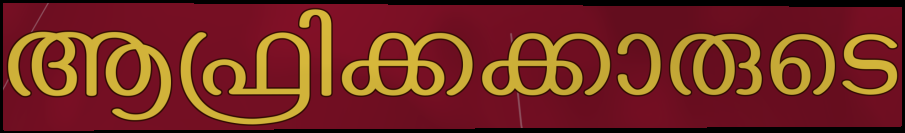
ആഫ്രിക്കക്കാരുടെ